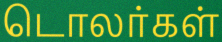
டொலர்கள்